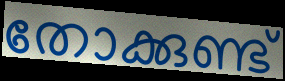
തോക്കുണ്ട്